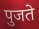
पुजते